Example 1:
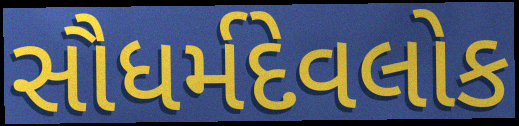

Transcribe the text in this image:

સૌધર્મદેવલોક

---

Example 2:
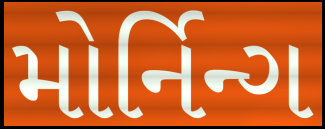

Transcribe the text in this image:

મોર્નિન્ગ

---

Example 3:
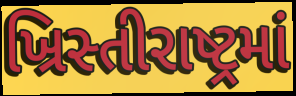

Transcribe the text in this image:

ખ્રિસ્તીરાષ્ટ્રમાં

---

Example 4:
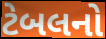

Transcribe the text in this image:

ટેબલનો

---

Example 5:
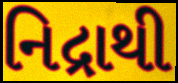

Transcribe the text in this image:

નિદ્રાથી